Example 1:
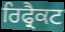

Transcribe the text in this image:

ਰਿਫ੍ਰੈਕਟ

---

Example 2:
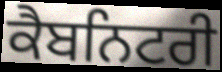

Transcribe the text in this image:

ਕੈਬਨਿਟਰੀ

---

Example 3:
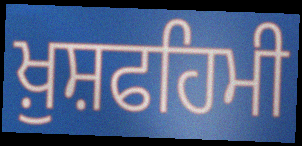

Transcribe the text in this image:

ਖ਼ੁਸ਼ਫਹਿਮੀ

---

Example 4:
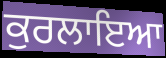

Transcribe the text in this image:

ਕੁਰਲਾਇਆ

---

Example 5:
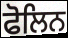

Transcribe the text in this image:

ਫੋਲਿਨ